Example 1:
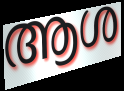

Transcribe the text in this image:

ആശ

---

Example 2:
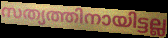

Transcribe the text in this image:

സത്യത്തിനായിട്ടല്ല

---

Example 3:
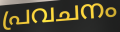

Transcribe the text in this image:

പ്രവചനം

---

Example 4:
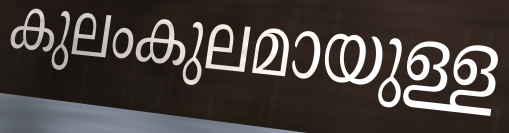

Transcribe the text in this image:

കുലംകുലമായുള്ള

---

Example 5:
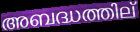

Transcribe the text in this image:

അബദ്ധത്തില്